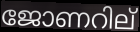
ജോണറില്